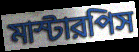
মাস্টারপিস